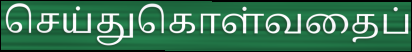
செய்துகொள்வதைப்